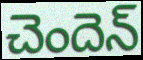
చెందెన్